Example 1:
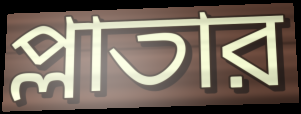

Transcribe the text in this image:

প্লাতার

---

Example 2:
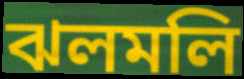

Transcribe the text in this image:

ঝলমলি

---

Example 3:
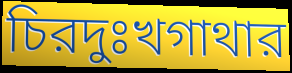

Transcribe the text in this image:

চিরদুঃখগাথার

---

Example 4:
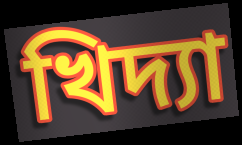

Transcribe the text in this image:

খিদ্যা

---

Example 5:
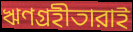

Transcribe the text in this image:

ঋণগ্রহীতারাই